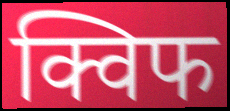
क्विफ